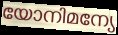
യോനിമന്യേ